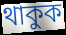
থাকুক